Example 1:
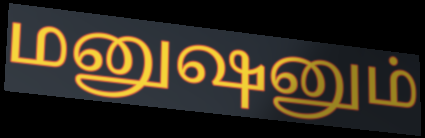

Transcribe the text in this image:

மனுஷனும்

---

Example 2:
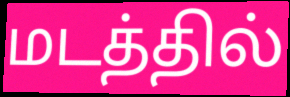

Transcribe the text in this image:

மடத்தில்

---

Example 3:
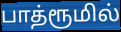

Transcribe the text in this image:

பாத்ரூமில்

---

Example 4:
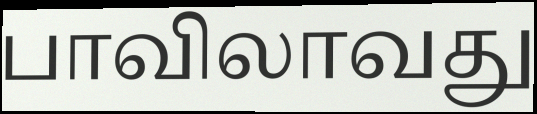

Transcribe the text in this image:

பாவிலாவது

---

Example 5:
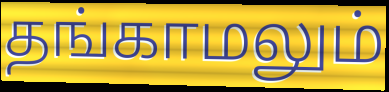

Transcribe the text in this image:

தங்காமலும்